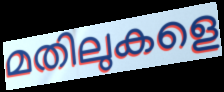
മതിലുകളെ